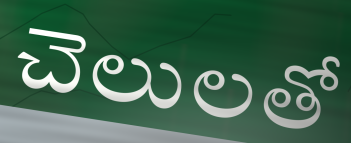
చెలులతో